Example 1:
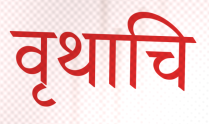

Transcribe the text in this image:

वृथाचि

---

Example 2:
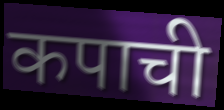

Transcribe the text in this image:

कपाची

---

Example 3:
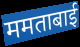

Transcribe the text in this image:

ममताबाई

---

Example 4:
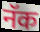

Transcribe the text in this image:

नॅक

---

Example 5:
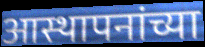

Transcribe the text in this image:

आस्थापनांच्या